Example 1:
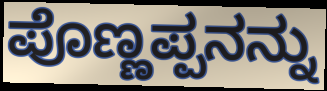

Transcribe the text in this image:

ಪೊಣ್ಣಪ್ಪನನ್ನು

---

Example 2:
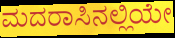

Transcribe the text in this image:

ಮದರಾಸಿನಲ್ಲಿಯೇ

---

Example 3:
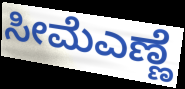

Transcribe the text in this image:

ಸೀಮೆಎಣ್ಣೆ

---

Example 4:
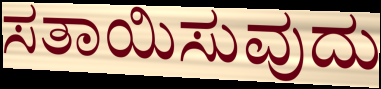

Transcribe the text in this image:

ಸತಾಯಿಸುವುದು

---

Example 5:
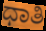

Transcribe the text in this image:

ಧಾತಿ